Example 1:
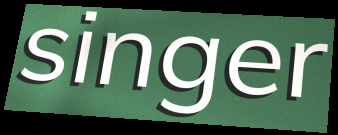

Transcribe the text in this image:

singer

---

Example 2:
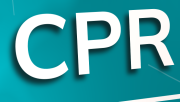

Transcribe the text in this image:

CPR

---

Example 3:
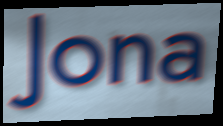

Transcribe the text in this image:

Jona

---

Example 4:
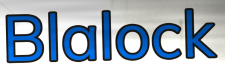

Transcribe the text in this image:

Blalock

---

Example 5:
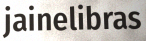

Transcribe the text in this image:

jainelibras